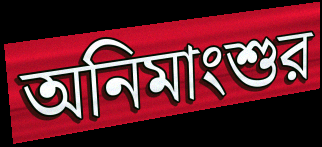
অনিমাংশুর